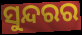
ସୁନ୍ଦରର